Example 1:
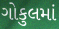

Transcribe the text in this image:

ગોકુલમાં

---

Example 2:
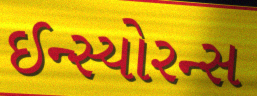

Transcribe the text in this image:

ઈન્સ્યોરન્સ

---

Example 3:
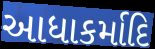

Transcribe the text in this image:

આધાકર્માદિ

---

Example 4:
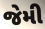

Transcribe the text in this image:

જેમી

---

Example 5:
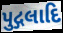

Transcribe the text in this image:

પુદ્ગલાદિ